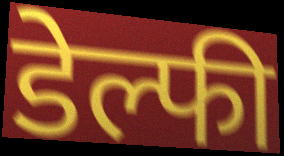
डेल्फी